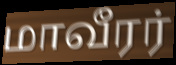
மாவீரர்